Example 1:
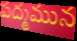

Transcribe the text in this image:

పద్మమున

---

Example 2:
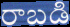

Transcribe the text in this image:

రాబడి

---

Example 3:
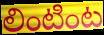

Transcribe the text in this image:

లింటింట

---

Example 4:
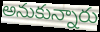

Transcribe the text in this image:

అనుకున్నారు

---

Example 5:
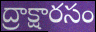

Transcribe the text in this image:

ద్రాక్షారసం